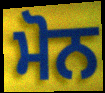
ਮੋਨ